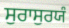
ਸੁਰਾਸੁਰਯੰ